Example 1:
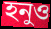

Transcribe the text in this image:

হনুও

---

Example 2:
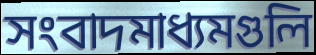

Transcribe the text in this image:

সংবাদমাধ্যমগুলি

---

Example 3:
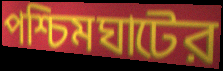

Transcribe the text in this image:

পশ্চিমঘাটের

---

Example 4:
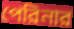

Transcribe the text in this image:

পেরিনার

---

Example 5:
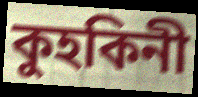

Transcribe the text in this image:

কুহকিনী